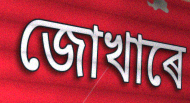
জোখাৰে